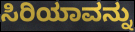
ಸಿರಿಯಾವನ್ನು